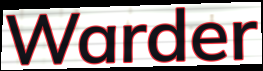
Warder